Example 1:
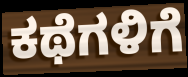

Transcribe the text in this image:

ಕಥೆಗಳಿಗೆ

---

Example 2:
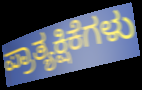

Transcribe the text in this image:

ಪ್ರಾತ್ಯಕ್ಷಿಕೆಗಳು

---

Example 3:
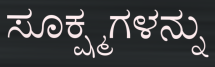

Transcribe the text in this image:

ಸೂಕ್ಷ್ಮಗಳನ್ನು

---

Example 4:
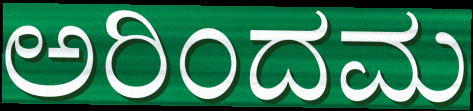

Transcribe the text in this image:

ಅರಿಂದಮ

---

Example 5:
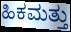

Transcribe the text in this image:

ಹಿಕಮತ್ತು